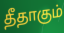
தீதாகும்